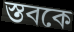
স্তবকে